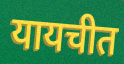
यायचीत